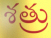
శత్రు